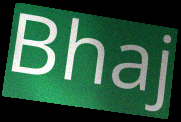
Bhaj